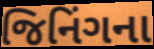
જિનિંગના